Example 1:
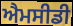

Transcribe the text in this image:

ਐਮਸੀਡੀ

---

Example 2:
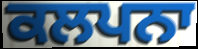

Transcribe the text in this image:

ਕਲਪਨਾ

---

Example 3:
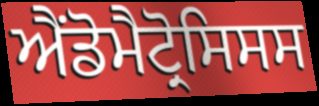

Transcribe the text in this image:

ਐਂਡੋਮੈਟ੍ਰੋਸਿਸਸ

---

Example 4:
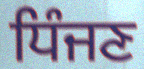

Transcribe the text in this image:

ਧਿੰਜਣ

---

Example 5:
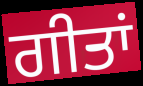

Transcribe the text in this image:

ਗੀਤਾਂ